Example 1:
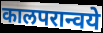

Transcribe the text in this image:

कालपरान्वये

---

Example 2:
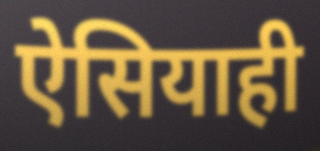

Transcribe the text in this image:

ऐसियाही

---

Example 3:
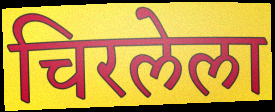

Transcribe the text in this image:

चिरलेला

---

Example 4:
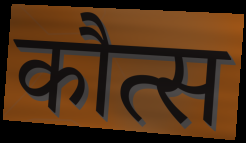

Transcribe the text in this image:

कौत्स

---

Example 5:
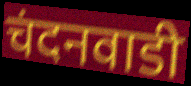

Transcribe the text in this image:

चंदनवाडी